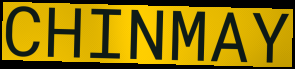
CHINMAY